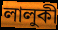
লালুকী